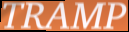
TRAMP